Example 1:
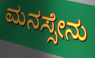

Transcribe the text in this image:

ಮನಸ್ಸೇನು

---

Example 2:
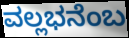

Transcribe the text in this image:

ವಲ್ಲಭನೆಂಬ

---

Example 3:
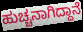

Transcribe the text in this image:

ಹುಚ್ಚನಾಗಿದ್ದಾನೆ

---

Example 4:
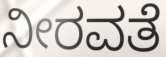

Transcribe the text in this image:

ನೀರವತೆ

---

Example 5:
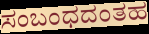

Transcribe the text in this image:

ಸಂಬಂಧದಂತಹ